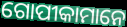
ଗୋପୀକାମାନେ